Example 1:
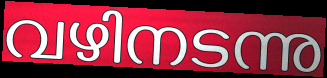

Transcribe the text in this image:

വഴിനടന്നു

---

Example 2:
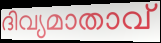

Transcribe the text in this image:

ദിവ്യമാതാവ്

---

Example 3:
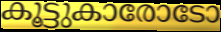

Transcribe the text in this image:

കൂട്ടുകാരോടോ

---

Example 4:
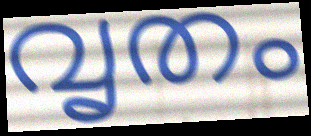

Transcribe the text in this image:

വൃതം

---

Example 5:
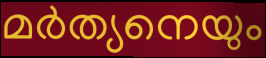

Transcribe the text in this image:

മർത്യനെയും